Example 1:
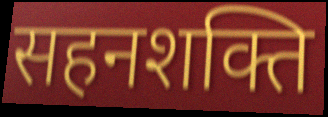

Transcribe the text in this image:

सहनशक्ति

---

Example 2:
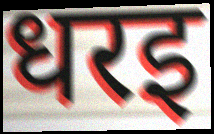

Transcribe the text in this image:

धरइ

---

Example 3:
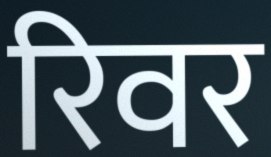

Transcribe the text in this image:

रिवर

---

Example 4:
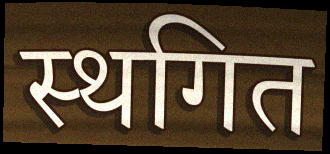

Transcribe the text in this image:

स्थगित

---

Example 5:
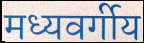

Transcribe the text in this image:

मध्यवर्गीय